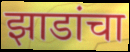
झाडांचा